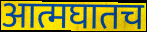
आत्मघातच